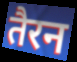
तैरन